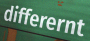
differernt